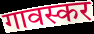
गावस्कर